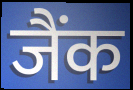
जैंक